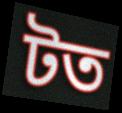
টত